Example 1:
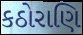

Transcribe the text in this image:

કઠોરાણિ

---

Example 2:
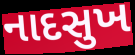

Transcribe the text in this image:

નાદસુખ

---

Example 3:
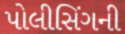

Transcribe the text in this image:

પોલીસિંગની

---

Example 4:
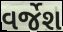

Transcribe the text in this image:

વર્જેશ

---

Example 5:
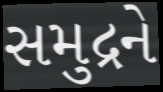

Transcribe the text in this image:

સમુદ્રને